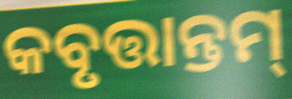
କବୃତ୍ତାନ୍ତମ୍